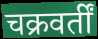
चक्रवर्तीं